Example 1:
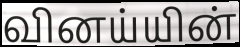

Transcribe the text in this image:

வினய்யின்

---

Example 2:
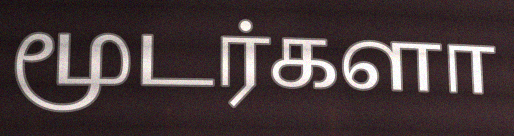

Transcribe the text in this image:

மூடர்களா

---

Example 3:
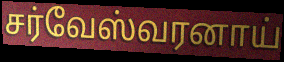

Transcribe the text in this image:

சர்வேஸ்வரனாய்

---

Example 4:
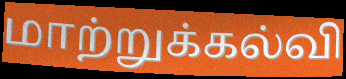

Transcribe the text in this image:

மாற்றுக்கல்வி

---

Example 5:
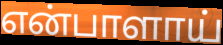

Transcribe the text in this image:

என்பாளாய்